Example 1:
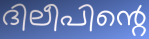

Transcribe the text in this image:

ദിലീപിന്റെ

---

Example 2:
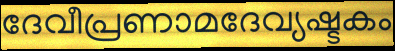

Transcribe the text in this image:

ദേവീപ്രണാമദേവ്യഷ്ടകം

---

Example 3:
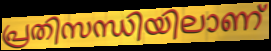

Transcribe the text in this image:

പ്രതിസന്ധിയിലാണ്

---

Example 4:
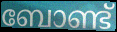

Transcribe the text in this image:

ബോണ്ട്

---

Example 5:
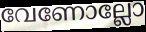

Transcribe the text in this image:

വേണോല്ലോ